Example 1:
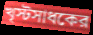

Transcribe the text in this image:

খৃস্টসাধকের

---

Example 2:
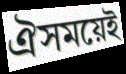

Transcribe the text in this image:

ঐসময়েই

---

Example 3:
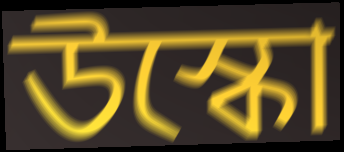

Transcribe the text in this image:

উস্কো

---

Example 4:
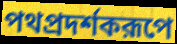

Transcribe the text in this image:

পথপ্রদর্শকরূপে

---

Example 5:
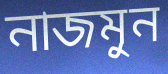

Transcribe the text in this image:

নাজমুন